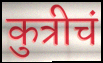
कुत्रीचं